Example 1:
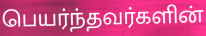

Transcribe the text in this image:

பெயர்ந்தவர்களின்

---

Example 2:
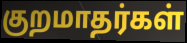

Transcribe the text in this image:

குறமாதர்கள்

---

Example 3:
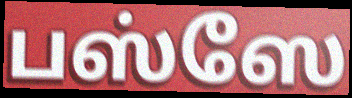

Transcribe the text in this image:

பஸ்ஸே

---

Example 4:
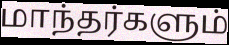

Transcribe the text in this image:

மாந்தர்களும்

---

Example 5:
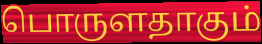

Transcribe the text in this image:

பொருளதாகும்